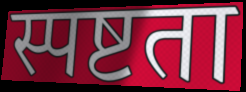
स्पष्टता